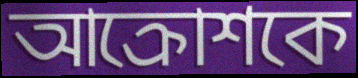
আক্রোশকে